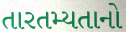
તારતમ્યતાનો